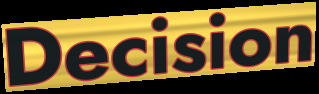
Decision